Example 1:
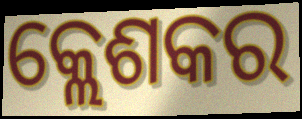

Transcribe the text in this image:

କ୍ଲେଶକର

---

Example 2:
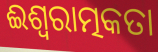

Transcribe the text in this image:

ଈଶ୍ଵରାତ୍ମକତା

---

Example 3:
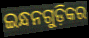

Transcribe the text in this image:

ଇନ୍ଧନଗୁଡ଼ିକର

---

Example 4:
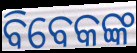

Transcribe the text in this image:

ବିବେକଙ୍କ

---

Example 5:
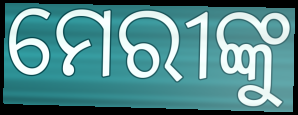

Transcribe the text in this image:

ମେରୀଙ୍କୁ